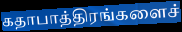
கதாபாத்திரங்களைச்